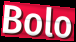
Bolo